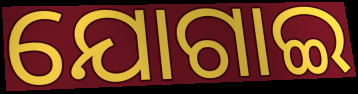
ଯୋଗାଇ